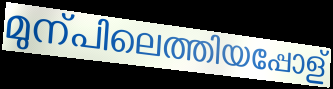
മുന്പിലെത്തിയപ്പോള്